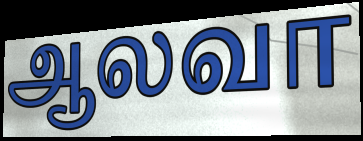
ஆலவா